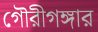
গৌরীগঙ্গার